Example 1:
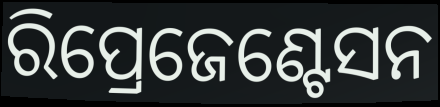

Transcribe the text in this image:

ରିପ୍ରେଜେଣ୍ଟେସନ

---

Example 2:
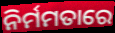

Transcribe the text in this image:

ନିର୍ମମତାରେ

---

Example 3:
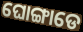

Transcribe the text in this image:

ଘୋଙ୍ଗାଡେ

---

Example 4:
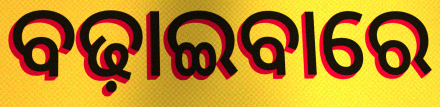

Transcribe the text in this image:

ବଢ଼ାଇବାରେ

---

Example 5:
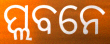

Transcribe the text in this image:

ପ୍ଲବନେ